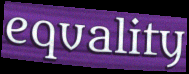
equality